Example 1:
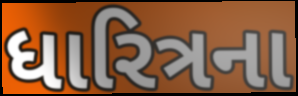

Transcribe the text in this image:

ધારિત્રના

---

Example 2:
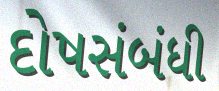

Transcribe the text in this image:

દોષસંબંધી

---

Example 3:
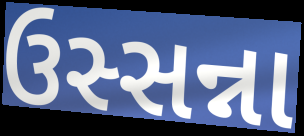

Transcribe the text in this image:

ઉસ્સન્ના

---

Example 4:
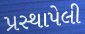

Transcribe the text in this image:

પ્રસ્થાપેલી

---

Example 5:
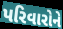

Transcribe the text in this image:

પરિવારોને